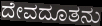
ದೇವದೂತನು